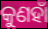
କୁଣହାଁ